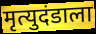
मृत्युदंडाला